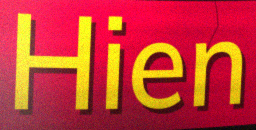
Hien